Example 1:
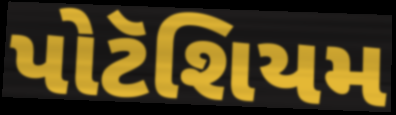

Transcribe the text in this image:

પોટૅશિયમ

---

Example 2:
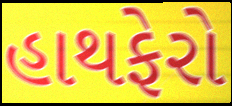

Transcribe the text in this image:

હાથફેરો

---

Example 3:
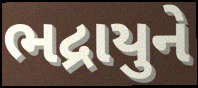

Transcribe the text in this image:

ભદ્રાયુને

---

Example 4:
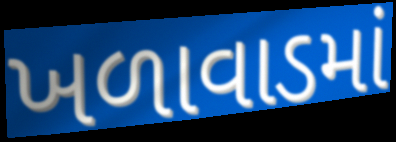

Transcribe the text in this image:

ખળાવાડમાં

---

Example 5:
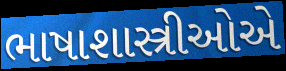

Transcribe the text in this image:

ભાષાશાસ્ત્રીઓએ